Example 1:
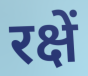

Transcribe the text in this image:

रक्षें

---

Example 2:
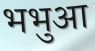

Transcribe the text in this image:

भभुआ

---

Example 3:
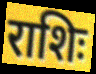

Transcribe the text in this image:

राशिः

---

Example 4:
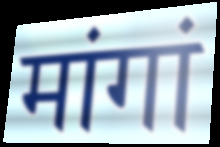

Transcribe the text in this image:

मांगां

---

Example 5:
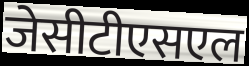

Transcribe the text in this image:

जेसीटीएसएल